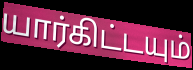
யார்கிட்டயும்